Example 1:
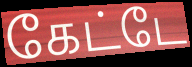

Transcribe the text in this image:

கேட்டே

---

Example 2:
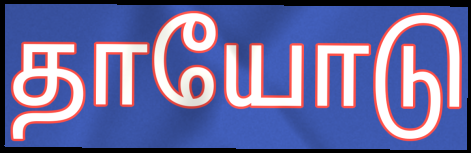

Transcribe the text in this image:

தாயோடு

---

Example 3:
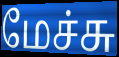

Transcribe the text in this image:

மேச்சு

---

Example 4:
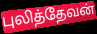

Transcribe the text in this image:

புலித்தேவன்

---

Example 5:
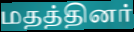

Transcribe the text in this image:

மதத்தினர்